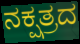
ನಕ್ಷತ್ರದ